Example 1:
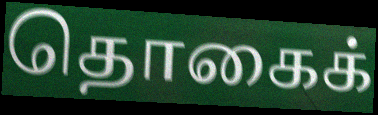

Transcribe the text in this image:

தொகைக்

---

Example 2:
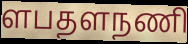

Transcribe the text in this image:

ளபதளநணி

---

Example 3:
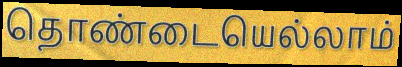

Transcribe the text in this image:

தொண்டையெல்லாம்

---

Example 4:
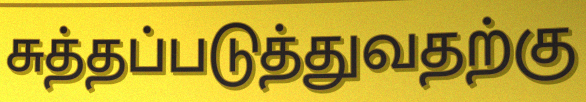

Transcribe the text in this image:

சுத்தப்படுத்துவதற்கு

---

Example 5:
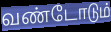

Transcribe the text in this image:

வண்டோடும்